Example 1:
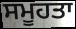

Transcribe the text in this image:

ਸਮੂਹਤਾ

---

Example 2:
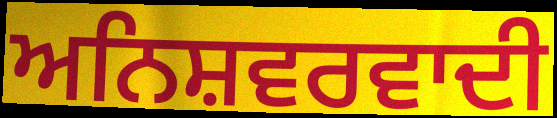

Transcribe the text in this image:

ਅਨਿਸ਼ਵਰਵਾਦੀ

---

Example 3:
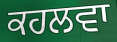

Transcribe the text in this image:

ਕਹਲਵਾ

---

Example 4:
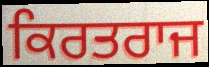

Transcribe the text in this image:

ਕਿਰਤਰਾਜ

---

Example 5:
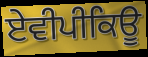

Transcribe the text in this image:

ਏਵੀਪੀਕਿਊ